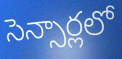
సెన్సార్లలో